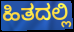
ಹಿತದಲ್ಲಿ